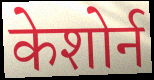
केशोर्न